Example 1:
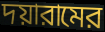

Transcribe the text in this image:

দয়ারামের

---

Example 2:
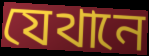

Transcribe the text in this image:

যেথানে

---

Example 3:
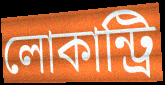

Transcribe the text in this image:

লোকান্ট্রি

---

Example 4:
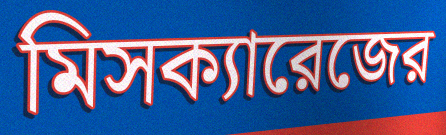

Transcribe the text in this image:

মিসক্যারেজের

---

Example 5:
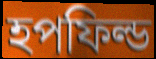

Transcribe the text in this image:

হপফিল্ড